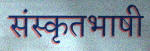
संस्कृतभाषी